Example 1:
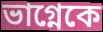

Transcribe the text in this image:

ভাগ্নেকে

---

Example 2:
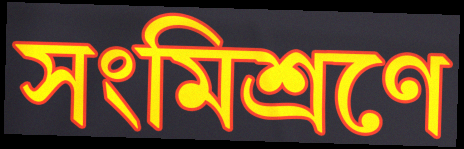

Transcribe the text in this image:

সংমিশ্রণে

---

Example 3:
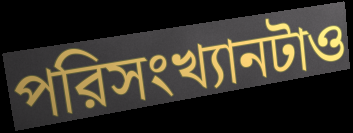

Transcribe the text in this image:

পরিসংখ্যানটাও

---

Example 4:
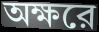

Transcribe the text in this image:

অক্ষরে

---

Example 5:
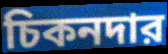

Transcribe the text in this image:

চিকনদার